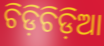
ଚିଡ଼ିଚିଡ଼ିଆ